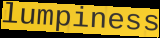
lumpiness